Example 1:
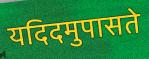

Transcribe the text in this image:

यदिदमुपासते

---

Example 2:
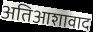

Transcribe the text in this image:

अतिआशावाद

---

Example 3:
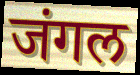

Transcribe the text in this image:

जंगल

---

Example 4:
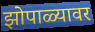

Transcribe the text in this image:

झोपाळ्यावर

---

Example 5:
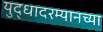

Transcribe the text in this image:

युद्धादरम्यानच्या